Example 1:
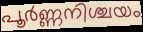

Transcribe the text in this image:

പൂർണ്ണനിശ്ചയം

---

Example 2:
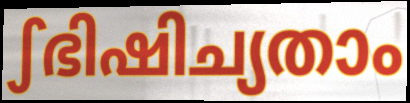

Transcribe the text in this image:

ഽഭിഷിച്യതാം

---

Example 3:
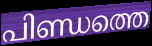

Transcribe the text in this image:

പിണ്ഡത്തെ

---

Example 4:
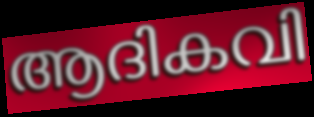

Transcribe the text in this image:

ആദികവി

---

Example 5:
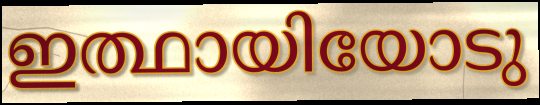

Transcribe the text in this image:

ഇത്ഥായിയോടു